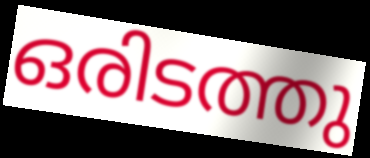
ഒരിടത്തു